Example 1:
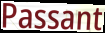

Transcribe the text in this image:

Passant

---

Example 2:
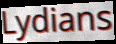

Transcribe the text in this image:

Lydians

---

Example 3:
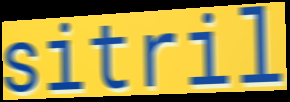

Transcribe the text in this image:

sitril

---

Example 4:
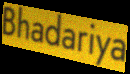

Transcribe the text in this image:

Bhadariya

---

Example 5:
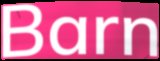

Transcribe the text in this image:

Barn